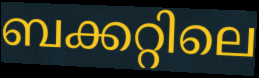
ബക്കറ്റിലെ